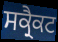
ਸਕ੍ਰੈਕਟ